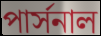
পার্সনাল